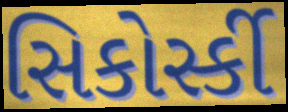
સિકોર્સ્કી